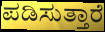
ಪಡಿಸುತ್ತಾರೆ